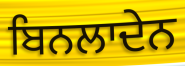
ਬਿਨਲਾਦੇਨ